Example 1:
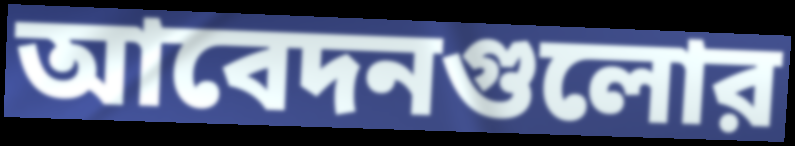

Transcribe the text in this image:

আবেদনগুলোর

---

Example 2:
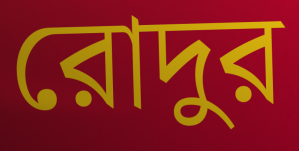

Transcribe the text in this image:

রোদুর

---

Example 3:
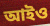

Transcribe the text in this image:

আইও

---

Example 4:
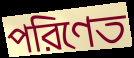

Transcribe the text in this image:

পরিণেত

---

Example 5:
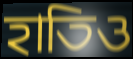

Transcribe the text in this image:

হাতিও